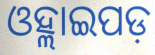
ଓହ୍ଲାଇପଡ଼